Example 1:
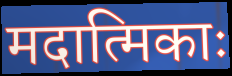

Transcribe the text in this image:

मदात्मिकाः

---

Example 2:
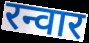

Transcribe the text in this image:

रन्वार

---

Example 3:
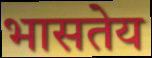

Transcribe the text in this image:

भासतेय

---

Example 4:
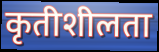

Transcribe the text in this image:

कृतीशीलता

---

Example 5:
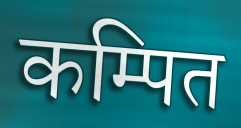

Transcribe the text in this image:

कम्पित